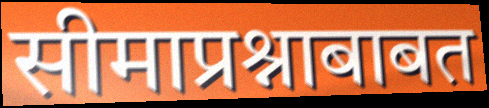
सीमाप्रश्नाबाबत